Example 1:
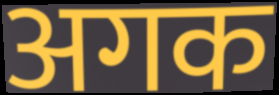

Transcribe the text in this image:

अगक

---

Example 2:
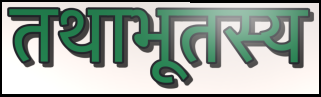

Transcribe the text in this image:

तथाभूतस्य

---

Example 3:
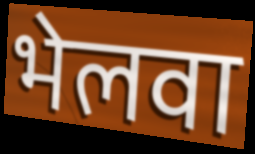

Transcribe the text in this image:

भेलवा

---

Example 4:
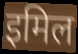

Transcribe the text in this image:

इमिल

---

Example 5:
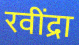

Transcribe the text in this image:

रवींद्रा